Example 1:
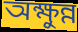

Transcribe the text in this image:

অক্ষুন্ন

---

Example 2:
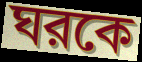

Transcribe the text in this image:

ঘরকে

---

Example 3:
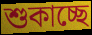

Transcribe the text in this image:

শুকাচ্ছে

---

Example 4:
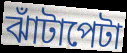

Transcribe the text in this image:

ঝাঁটাপেটা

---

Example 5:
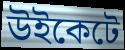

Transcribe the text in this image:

উইকেটে